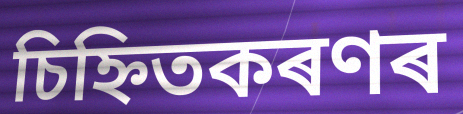
চিহ্নিতকৰণৰ